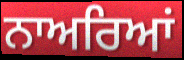
ਨਾਅਰਿਆਂ